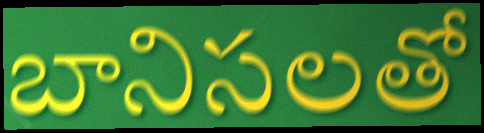
బానిసలతో